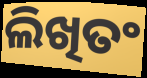
ଲିଖିତଂ